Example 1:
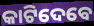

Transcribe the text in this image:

କାଟିଦେବେ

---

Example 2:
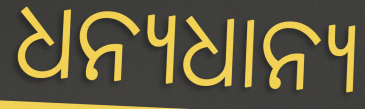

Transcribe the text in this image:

ଧନ୍ୟଧାନ୍ୟ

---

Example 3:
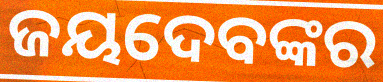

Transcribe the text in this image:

ଜୟଦେବଙ୍କର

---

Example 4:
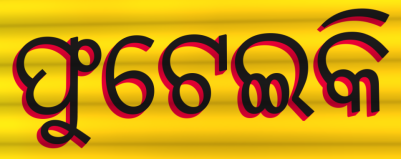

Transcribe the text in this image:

ଫୁଟେଇକି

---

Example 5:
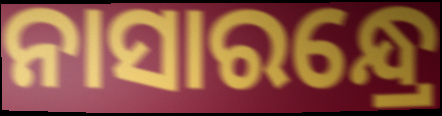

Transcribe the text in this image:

ନାସାରନ୍ଧ୍ରେ